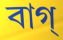
বাগ্